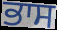
ਭਾਸ